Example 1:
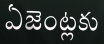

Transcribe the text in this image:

ఏజెంట్లకు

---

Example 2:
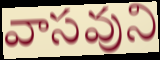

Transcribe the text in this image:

వాసవుని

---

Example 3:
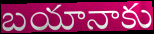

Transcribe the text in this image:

బయానాకు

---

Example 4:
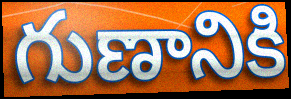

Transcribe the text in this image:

గుణానికి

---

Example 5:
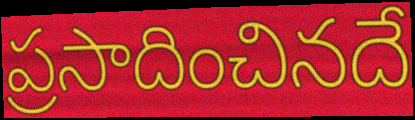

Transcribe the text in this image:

ప్రసాదించినదే